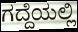
ಗದ್ದೆಯಲ್ಲಿ